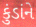
કુંડાંને